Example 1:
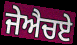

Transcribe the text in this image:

ਜੇਐਚਏ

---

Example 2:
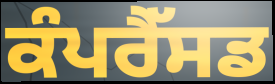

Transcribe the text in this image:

ਕੰਪਰੈੱਸਡ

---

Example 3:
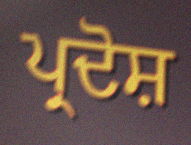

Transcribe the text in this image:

ਪ੍ਰਦੋਸ਼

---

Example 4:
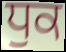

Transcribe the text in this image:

ਧੁਕ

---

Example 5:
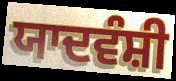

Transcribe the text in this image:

ਯਾਦਵੰਸ਼ੀ